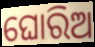
ଘୋରିଅ